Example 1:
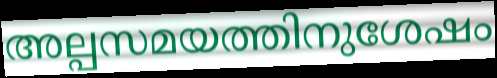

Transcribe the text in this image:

അല്പസമയത്തിനുശേഷം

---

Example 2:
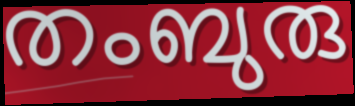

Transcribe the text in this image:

തംബുരു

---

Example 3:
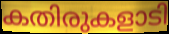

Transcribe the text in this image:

കതിരുകളാടി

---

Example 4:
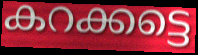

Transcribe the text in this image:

കറക്കട്ടെ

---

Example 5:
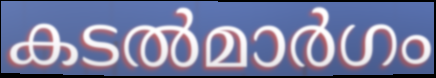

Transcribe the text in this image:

കടൽമാർഗം